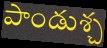
పాండుశ్చ